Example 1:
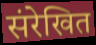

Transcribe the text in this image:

संरेखित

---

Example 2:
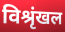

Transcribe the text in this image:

विश्रृंखल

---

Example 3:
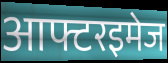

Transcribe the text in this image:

आफ्टरइमेज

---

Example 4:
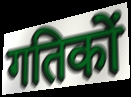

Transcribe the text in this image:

गतिकों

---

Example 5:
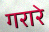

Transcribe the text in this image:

गरारे